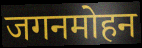
जगनमोहन